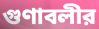
গুণাবলীর